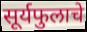
सूर्यफुलाचे